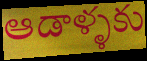
ఆడాళ్ళకు